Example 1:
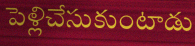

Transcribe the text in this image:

పెళ్లిచేసుకుంటాడు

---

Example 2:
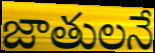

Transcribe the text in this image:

జాతులనే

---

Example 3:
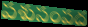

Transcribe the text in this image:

పశుసంపద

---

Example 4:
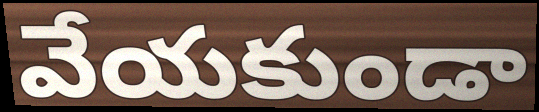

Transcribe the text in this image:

వేయకుండా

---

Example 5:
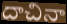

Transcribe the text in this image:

దాచినా